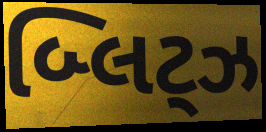
બ્લિટ્ઝ